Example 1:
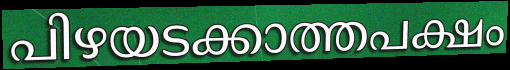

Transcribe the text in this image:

പിഴയടക്കാത്തപക്ഷം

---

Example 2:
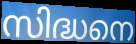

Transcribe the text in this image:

സിദ്ധനെ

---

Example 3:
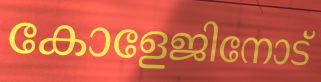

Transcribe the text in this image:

കോളേജിനോട്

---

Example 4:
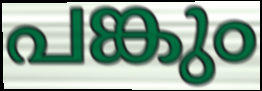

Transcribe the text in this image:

പങ്കും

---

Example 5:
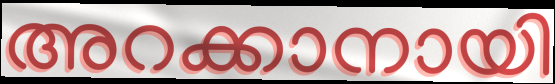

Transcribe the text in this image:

അറക്കാനായി